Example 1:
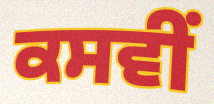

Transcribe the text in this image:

ਕਸਵੀਂ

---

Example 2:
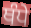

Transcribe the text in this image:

ਥੰਧੇ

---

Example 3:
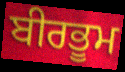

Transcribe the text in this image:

ਬੀਰਭੂਮ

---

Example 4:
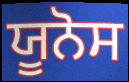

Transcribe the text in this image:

ਯੂਨੋਸ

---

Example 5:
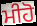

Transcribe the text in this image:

ਮੀਹੋ